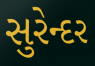
સુરેન્દર